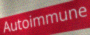
Autoimmune